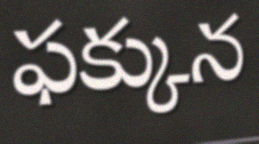
ఫక్కున